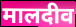
मालदीव